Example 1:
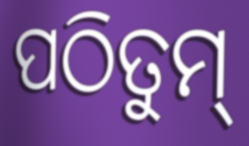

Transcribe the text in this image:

ପଠିତୁମ୍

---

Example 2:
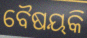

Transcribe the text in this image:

ବୈଷୟକି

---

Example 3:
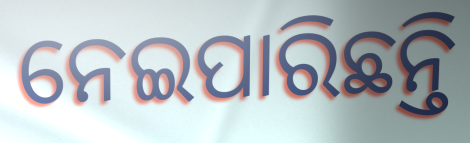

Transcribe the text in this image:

ନେଇପାରିଛନ୍ତି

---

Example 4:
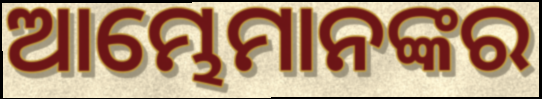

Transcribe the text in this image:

ଆମ୍ଭେମାନଙ୍କର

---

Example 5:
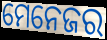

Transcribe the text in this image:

ମେନେଜର